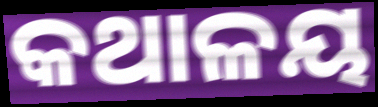
କଥାଳୟ